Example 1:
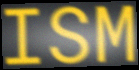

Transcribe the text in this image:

ISM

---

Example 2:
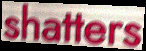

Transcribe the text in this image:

shatters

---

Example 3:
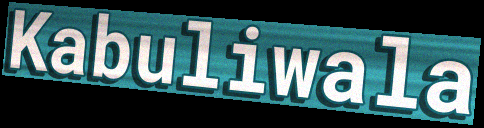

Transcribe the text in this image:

Kabuliwala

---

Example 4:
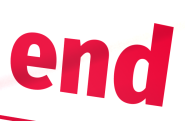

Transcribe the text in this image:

end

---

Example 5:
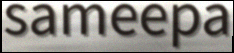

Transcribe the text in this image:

sameepa